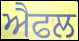
ਐਫਲ